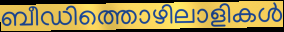
ബീഡിത്തൊഴിലാളികൾ